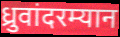
ध्रुवांदरम्यान